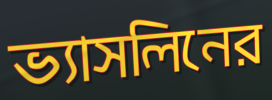
ভ্যাসলিনের